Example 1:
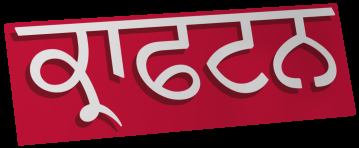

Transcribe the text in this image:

ਕ੍ਰਾਫਟਨ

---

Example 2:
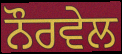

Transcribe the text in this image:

ਨੌਰਵੇਲ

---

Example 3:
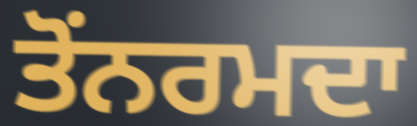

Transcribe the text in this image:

ਤੋਂਨਰਮਦਾ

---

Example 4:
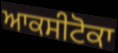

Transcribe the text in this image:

ਆਕਸੀਟੋਕਾ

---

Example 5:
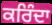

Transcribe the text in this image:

ਕਰਿੰਦਾ